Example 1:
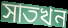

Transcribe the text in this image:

সাতখন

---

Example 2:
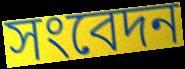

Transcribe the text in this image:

সংবেদন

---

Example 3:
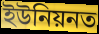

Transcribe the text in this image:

ইউনিয়নত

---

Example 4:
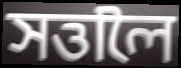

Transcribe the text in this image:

সত্তালৈ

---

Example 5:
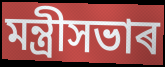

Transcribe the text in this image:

মন্ত্ৰীসভাৰ